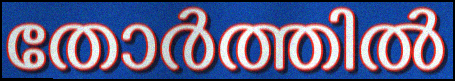
തോർത്തിൽ